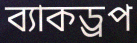
ব্যাকড্রপ